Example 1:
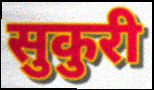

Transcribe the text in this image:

सुकुरी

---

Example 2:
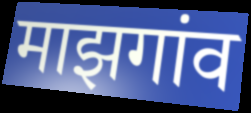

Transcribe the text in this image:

माझगांव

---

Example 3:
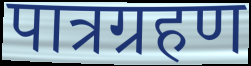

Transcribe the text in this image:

पात्रग्रहण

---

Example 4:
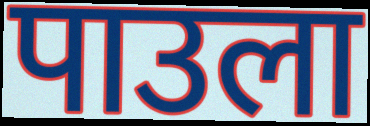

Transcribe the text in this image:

पाउला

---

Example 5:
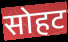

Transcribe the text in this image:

सोहट